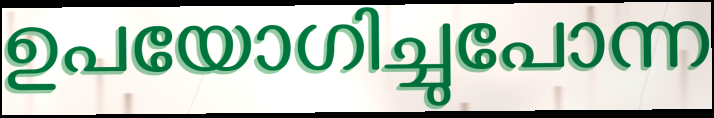
ഉപയോഗിച്ചുപോന്ന